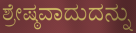
ಶ್ರೇಷ್ಠವಾದುದನ್ನು